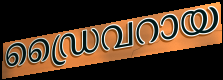
ഡ്രൈവറായ